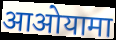
आओयामा